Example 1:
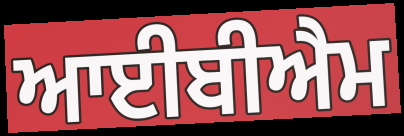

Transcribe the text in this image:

ਆਈਬੀਐਮ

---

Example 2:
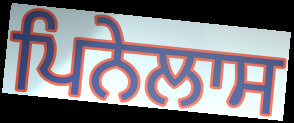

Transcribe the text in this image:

ਪਿਨੇਲਾਸ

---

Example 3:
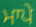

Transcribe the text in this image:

ਮਾਪੇ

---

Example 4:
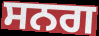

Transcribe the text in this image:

ਸਨਗ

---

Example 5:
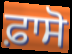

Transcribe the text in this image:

ਫ਼ਾਸੋ